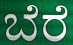
ಬೆರೆ